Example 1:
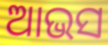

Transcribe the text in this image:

ଆଭସ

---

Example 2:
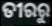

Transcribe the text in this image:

ତୀରରୁ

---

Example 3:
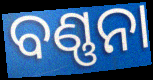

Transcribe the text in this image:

ବଣ୍ଣନା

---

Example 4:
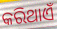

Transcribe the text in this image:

କରିଥାଏଁ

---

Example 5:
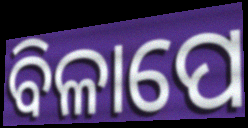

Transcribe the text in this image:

ବିଳାପେ